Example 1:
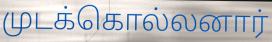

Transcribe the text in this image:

முடக்கொல்லனார்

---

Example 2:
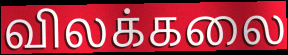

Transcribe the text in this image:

விலக்கலை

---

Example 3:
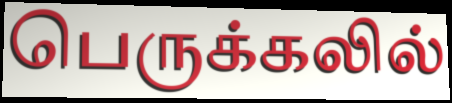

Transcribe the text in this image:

பெருக்கலில்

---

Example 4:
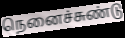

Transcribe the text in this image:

நெனைச்சுண்டு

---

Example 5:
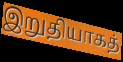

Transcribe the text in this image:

இறுதியாகத்